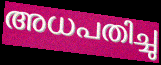
അധപതിച്ചു